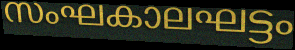
സംഘകാലഘട്ടം